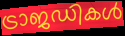
ട്രാജഡികൾ